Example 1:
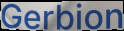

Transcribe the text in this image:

Gerbion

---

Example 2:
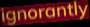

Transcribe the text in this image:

ignorantly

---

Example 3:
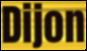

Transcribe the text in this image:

Dijon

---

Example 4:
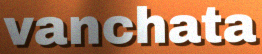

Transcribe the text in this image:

vanchata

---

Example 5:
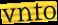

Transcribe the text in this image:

vnto